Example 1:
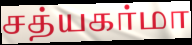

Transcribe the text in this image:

சத்யகர்மா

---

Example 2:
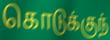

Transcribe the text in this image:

கொடுக்குந்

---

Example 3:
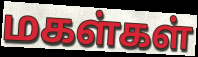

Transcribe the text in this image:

மகள்கள்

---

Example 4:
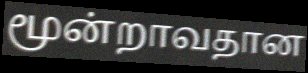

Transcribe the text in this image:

மூன்றாவதான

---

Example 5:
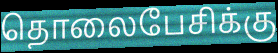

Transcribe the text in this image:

தொலைபேசிக்கு